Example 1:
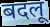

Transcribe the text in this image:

बदलू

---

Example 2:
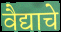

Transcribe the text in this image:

वैद्याचे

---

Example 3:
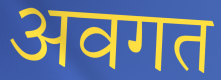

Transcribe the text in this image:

अवगत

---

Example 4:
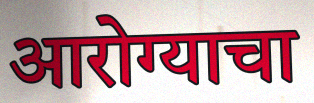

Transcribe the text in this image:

आरोग्याचा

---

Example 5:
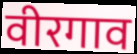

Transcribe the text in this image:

वीरगाव